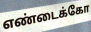
எண்டைக்கோ